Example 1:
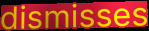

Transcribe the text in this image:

dismisses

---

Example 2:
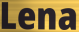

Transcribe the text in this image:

Lena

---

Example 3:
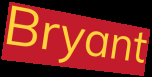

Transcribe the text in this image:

Bryant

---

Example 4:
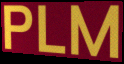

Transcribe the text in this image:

PLM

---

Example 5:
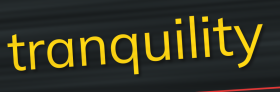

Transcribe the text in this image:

tranquility